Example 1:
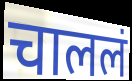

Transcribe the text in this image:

चाललं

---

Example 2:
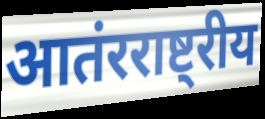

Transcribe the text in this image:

आतंरराष्ट्रीय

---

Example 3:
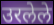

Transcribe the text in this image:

उरलेले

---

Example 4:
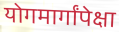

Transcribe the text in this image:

योगमार्गांपेक्षा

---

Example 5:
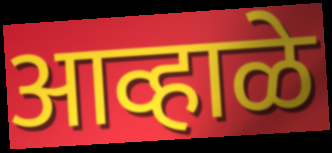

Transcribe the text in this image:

आव्हाळे